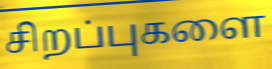
சிறப்புகளை